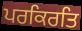
ਪਰਕਿਰਤਿ